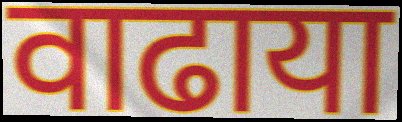
वाढाया